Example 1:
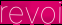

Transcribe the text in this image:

revoi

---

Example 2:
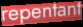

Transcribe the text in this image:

repentant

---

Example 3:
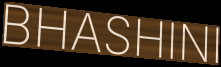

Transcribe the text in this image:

BHASHINI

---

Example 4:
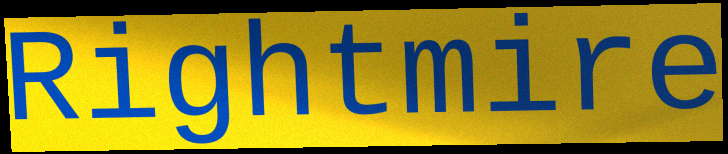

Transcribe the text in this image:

Rightmire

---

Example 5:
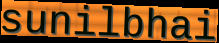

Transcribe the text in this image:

sunilbhai